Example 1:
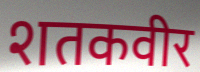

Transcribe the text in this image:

शतकवीर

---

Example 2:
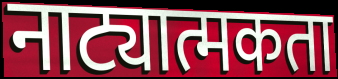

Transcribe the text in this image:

नाट्यात्मकता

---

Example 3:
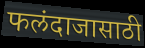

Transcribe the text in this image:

फलंदाजासाठी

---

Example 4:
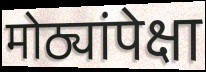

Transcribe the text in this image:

मोठ्यांपेक्षा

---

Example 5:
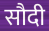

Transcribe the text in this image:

सौदी